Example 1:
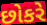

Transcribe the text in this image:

છોકરે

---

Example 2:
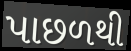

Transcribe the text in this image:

પાછળથી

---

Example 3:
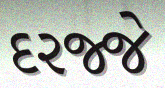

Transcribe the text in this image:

દરજ્જે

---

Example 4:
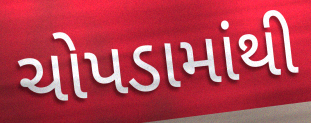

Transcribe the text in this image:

ચોપડામાંથી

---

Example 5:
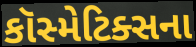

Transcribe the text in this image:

કૉસ્મેટિક્સના